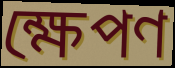
ক্ষেপণ